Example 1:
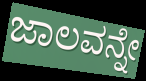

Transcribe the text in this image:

ಜಾಲವನ್ನೇ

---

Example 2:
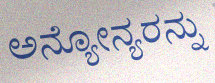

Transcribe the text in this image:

ಅನ್ಯೋನ್ಯರನ್ನು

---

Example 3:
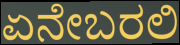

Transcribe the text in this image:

ಏನೇಬರಲಿ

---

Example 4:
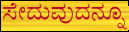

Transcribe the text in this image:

ಸೇದುವುದನ್ನೂ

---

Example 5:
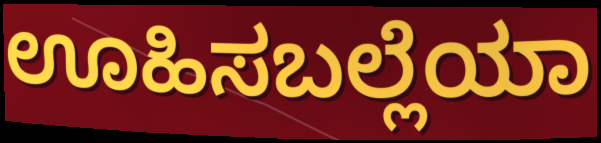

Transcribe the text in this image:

ಊಹಿಸಬಲ್ಲೆಯಾ